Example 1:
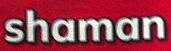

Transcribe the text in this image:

shaman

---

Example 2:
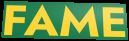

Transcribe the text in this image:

FAME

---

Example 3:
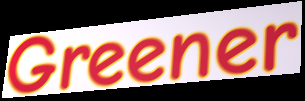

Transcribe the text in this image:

Greener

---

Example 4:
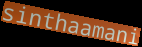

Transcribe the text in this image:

sinthaamani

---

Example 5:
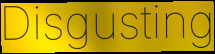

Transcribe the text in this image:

Disgusting